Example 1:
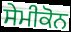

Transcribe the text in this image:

ਸੇਮੀਕੋਨ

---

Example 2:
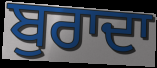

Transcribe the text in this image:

ਬੁਰਾਦਾ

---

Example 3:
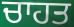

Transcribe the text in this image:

ਚਾਹਤ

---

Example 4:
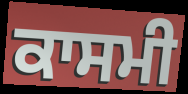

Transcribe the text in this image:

ਕਾਸਮੀ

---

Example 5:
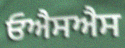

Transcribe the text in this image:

ਓਐਸਐਸ